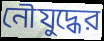
নৌযুদ্ধের